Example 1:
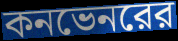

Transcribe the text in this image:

কনভেনরের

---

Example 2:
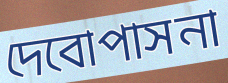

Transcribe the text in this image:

দেবোপাসনা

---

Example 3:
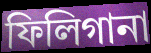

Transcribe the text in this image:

ফিলিগানা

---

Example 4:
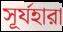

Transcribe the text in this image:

সূর্যহারা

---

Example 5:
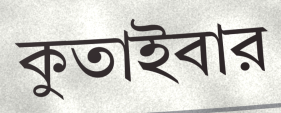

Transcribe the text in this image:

কুতাইবার